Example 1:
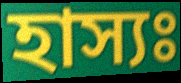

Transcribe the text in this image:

হাস্যঃ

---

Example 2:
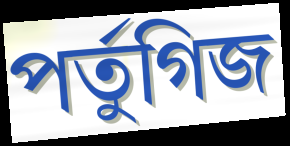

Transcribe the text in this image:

পর্তুগিজ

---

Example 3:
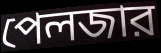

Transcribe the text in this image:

পেলজার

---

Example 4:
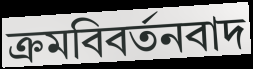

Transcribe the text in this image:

ক্রমবিবর্তনবাদ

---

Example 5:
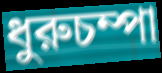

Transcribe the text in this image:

ধুরুচম্পা